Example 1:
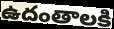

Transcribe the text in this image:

ఉదంతాలకి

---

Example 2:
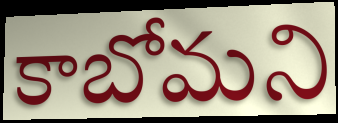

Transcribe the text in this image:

కాబోమని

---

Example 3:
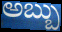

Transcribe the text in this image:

అబ్బు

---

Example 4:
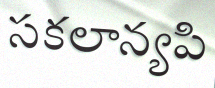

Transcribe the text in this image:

సకలాన్యపి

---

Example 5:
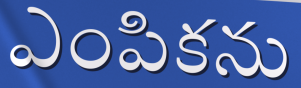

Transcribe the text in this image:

ఎంపికను